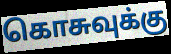
கொசுவுக்கு